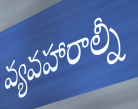
వ్యవహారాల్నీ